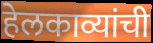
हेलकाव्यांची